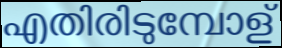
എതിരിടുമ്പോള്